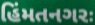
હિંમતનગરઃ